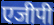
एजीपी